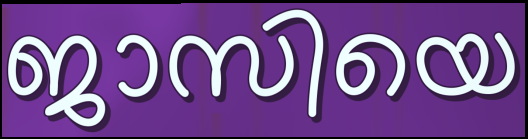
ജാസിയെ